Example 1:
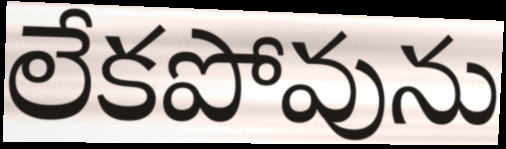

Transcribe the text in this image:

లేకపోవును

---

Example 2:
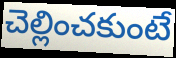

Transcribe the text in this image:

చెల్లించకుంటే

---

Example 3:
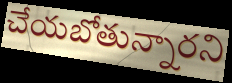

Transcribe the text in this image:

చేయబోతున్నారని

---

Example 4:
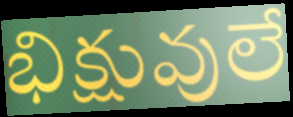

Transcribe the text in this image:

భిక్షువులే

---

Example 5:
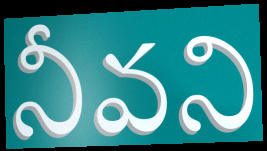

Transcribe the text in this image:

నీవని